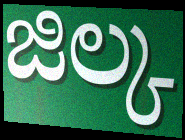
జిల్క